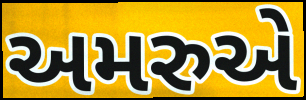
અમરુએ